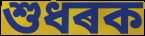
শুধৰক